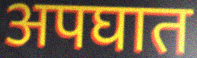
अपघात